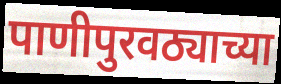
पाणीपुरवठ्याच्या